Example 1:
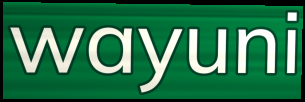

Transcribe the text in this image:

wayuni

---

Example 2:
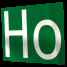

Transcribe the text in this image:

Ho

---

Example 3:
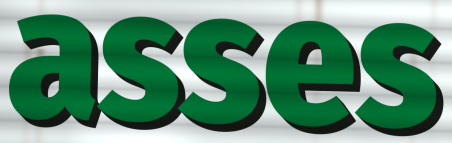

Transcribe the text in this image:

asses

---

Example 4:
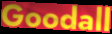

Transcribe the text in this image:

Goodall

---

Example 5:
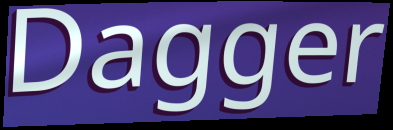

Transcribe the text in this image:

Dagger